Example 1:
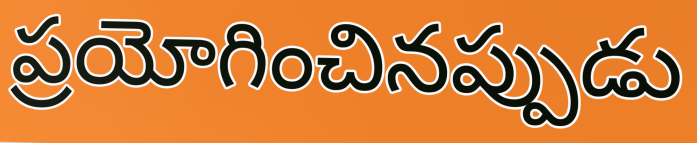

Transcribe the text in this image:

ప్రయోగించినప్పుడు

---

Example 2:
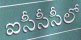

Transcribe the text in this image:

ఐసీసీసీలో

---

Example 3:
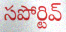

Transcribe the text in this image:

సపోర్టివ్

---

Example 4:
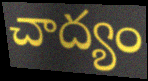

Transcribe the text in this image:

చాద్యం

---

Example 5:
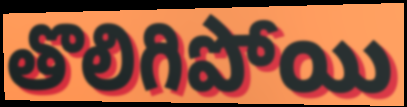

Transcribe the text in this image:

తొలిగిపోయి